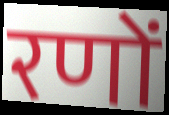
रणों